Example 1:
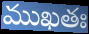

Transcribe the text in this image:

ముఖతః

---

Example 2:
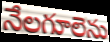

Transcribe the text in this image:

నేలగూలెను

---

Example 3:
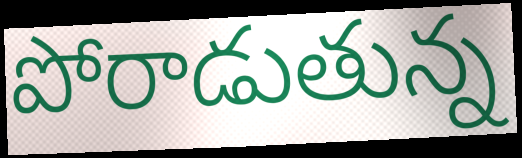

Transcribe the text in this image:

పోరాడుతున్న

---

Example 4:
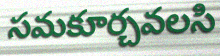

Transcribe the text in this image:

సమకూర్చవలసి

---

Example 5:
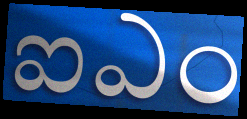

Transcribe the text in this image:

ఐఎం